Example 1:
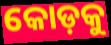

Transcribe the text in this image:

କୋଡ଼କୁ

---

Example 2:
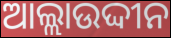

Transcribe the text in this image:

ଆଲ୍ଲାଉଦ୍ଦୀନ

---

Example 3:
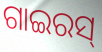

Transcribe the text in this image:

ଗାଇରସ୍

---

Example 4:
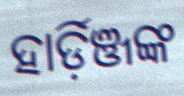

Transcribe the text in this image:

ହାର୍ଡ଼ିଞ୍ଜଙ୍କ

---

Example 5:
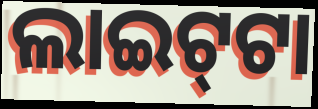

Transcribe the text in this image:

ଲାଇଟ୍‍ଟା